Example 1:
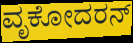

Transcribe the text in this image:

ವೃಕೋದರನ್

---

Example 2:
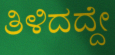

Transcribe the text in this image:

ತಿಳಿದದ್ದೇ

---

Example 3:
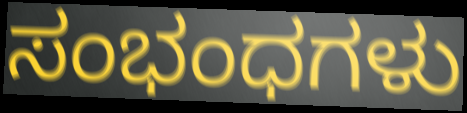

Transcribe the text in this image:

ಸಂಭಂಧಗಳು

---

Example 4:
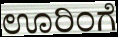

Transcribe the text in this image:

ಊರಿಂಗೆ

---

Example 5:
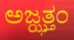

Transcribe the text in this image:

ಅಜ್ಝತ್ತಂ